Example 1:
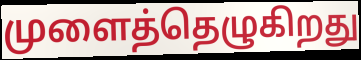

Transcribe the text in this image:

முளைத்தெழுகிறது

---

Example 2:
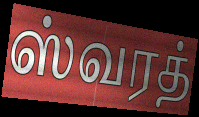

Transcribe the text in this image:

ஸ்வரத்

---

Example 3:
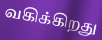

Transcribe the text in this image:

வகிக்கிறது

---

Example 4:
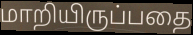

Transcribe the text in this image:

மாறியிருப்பதை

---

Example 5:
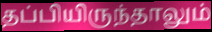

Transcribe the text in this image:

தப்பியிருந்தாலும்